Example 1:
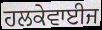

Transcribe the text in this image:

ਹਲਕੇਵਾਈਜ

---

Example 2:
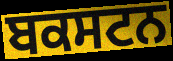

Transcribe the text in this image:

ਬਕਸਟਨ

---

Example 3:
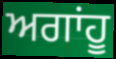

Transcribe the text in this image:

ਅਗਾਂਹੂ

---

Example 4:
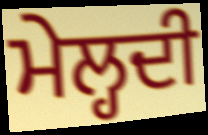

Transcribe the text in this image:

ਮੇਲ੍ਹਦੀ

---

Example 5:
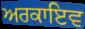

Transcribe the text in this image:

ਅਰਕਾਇਵ